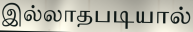
இல்லாதபடியால்